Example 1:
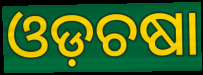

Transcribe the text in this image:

ଓଡ଼ଚଷା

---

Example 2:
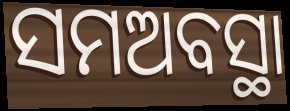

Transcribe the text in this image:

ସମଅବସ୍ଥା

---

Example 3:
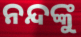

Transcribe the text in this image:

ନନ୍ଦଙ୍କୁ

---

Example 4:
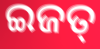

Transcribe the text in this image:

ଇଜତ୍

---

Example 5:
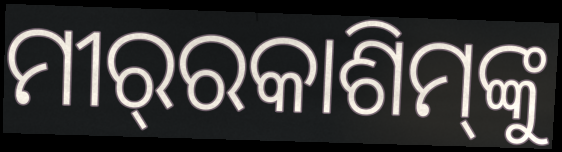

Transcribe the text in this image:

ମୀର୍‌ରକାଶିମ୍‌ଙ୍କୁ